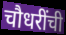
चौधरींची